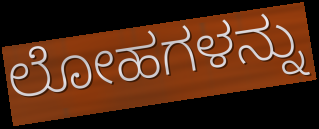
ಲೋಹಗಳನ್ನು